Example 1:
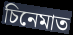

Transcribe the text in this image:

চিনেমাত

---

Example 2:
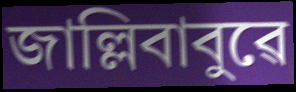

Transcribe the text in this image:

জাল্লিবাবুৱে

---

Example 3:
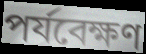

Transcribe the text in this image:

পৰ্যবেক্ষণ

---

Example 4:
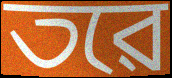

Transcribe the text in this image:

তৱে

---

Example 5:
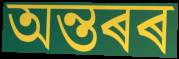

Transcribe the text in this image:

অন্তৰৰ